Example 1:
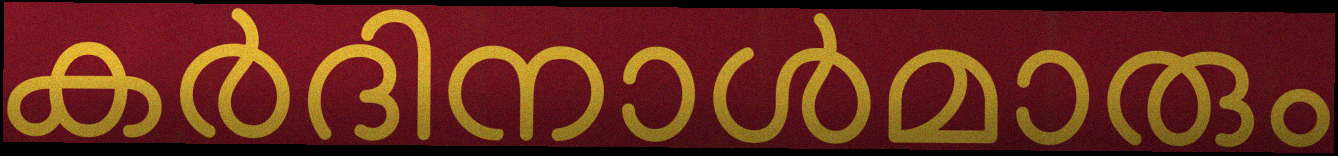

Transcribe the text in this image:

കർദിനാൾമാരും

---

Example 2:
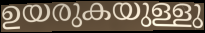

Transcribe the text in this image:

ഉയരുകയുള്ളു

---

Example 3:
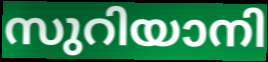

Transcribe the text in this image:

സുറിയാനി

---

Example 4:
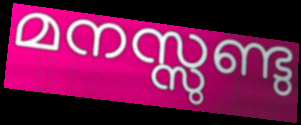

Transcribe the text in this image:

മനസ്സുണ്ടു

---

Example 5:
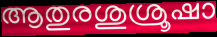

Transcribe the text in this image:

ആതുരശുശ്രൂഷാ